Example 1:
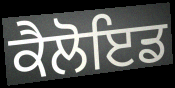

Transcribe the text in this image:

ਕੈਲੋਇਡ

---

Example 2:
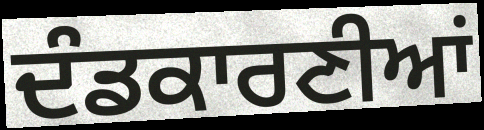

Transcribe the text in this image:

ਦੰਡਕਾਰਣੀਆਂ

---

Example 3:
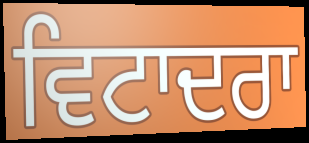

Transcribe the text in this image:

ਵਿਟਾਦਰਾ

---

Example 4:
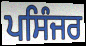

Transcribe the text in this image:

ਪਸਿੰਜਰ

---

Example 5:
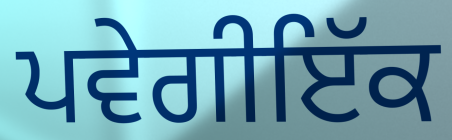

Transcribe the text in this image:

ਪਵੇਗੀਇੱਕ